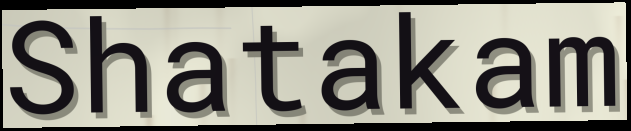
Shatakam